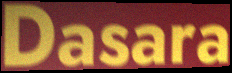
Dasara